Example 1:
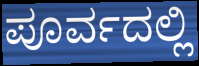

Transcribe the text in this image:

ಪೂರ್ವದಲ್ಲಿ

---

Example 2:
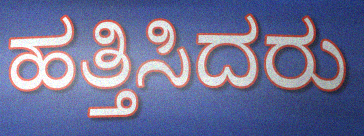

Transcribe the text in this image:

ಹತ್ತಿಸಿದರು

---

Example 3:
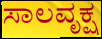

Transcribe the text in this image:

ಸಾಲವೃಕ್ಷ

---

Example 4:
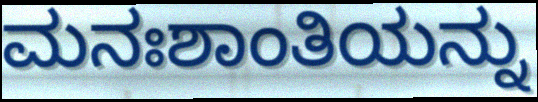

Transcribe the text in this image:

ಮನಃಶಾಂತಿಯನ್ನು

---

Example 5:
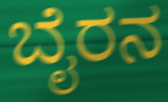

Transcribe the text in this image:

ಬೈರನ